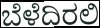
ಬೆಳೆದಿರಲಿ